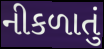
નીકળાતું